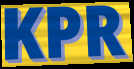
KPR